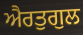
ਐਰਤੁਗੁਲ